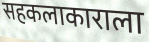
सहकलाकाराला